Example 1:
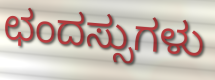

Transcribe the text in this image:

ಛಂದಸ್ಸುಗಳು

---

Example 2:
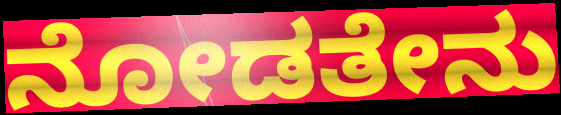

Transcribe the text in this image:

ನೋಡತೇನು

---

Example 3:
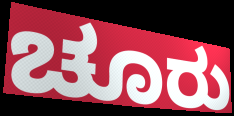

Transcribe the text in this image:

ಚೂರು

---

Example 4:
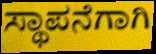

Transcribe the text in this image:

ಸ್ಥಾಪನೆಗಾಗಿ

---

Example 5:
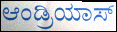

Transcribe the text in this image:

ಆಂಡ್ರಿಯಾಸ್